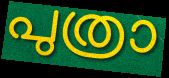
പുത്രാ